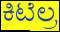
ಕಿಟೆಲ್ರ